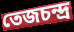
তেজচন্দ্র